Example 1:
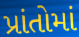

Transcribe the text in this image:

પ્રાંતોમાં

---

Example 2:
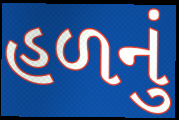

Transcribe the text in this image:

હળનું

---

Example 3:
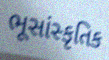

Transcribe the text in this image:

ભૂસાંસ્કૃતિક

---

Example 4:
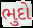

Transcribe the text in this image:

ભુદો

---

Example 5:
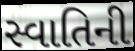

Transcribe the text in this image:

સ્વાતિની